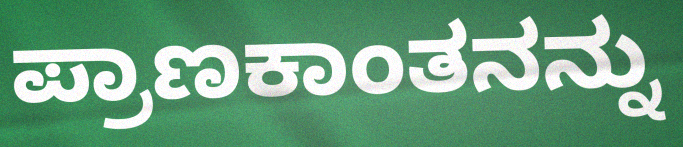
ಪ್ರಾಣಕಾಂತನನ್ನು